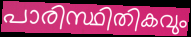
പാരിസ്ഥിതികവും